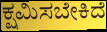
ಕ್ಷಮಿಸಬೇಕಿದೆ